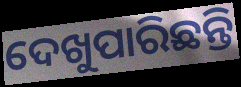
ଦେଖୁପାରିଛନ୍ତି